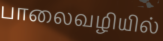
பாலைவழியில்